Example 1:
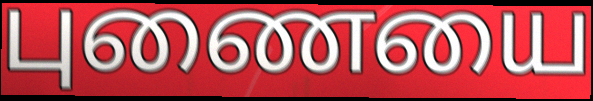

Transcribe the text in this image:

புணையை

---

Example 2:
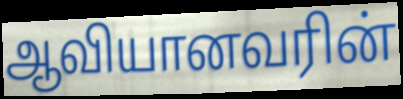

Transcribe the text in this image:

ஆவியானவரின்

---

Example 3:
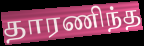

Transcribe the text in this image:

தாரணிந்த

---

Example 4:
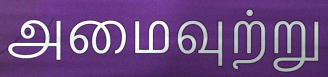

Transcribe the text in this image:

அமைவுற்று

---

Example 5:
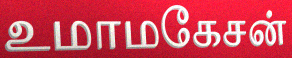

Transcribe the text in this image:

உமாமகேசன்